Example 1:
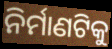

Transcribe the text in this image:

ନିର୍ମାଣଟିକୁ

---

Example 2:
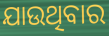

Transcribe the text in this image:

ଯାଉଥିବାର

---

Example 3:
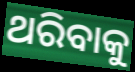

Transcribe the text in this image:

ଥରିବାକୁ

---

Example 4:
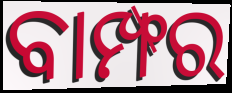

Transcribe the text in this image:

ବାମ୍ଫର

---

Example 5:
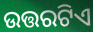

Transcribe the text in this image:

ଉତ୍ତରଟିଏ